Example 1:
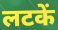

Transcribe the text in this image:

लटकें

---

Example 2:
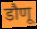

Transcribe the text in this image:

डौणू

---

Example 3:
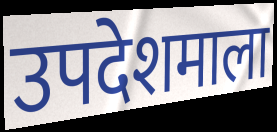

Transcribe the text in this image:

उपदेशमाला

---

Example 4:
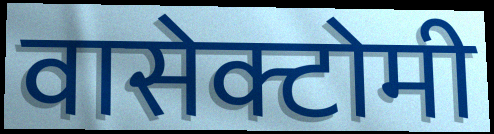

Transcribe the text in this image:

वासेक्टोमी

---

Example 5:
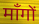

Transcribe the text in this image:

माँगों